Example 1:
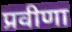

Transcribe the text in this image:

प्रवीणा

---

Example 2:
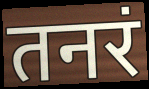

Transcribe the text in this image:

तनरं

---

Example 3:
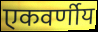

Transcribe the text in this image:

एकवर्णीय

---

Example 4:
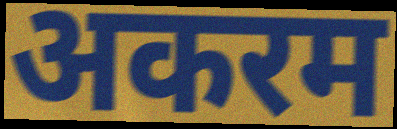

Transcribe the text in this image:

अकरम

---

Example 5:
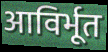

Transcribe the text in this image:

आविर्भूत